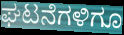
ಘಟನೆಗಳಿಗೂ